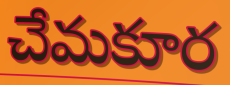
చేమకూర